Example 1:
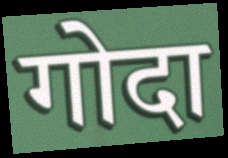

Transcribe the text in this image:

गोदा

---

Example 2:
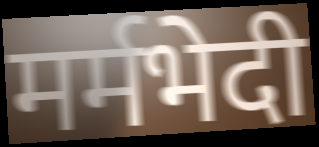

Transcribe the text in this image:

मर्मभेदी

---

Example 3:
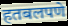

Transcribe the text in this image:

हतबलपणे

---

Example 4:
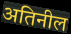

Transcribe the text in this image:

अतिनील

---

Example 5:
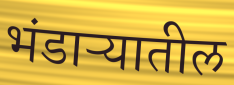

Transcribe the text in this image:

भंडाऱ्यातील